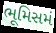
ભૂમિસમં